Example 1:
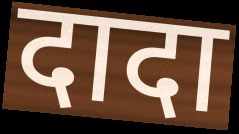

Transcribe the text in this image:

दादा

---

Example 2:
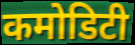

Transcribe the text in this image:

कमोडिटी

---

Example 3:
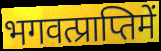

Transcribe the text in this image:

भगवत्प्राप्तिमें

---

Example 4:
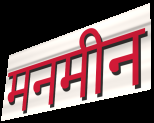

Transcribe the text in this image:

मनमीन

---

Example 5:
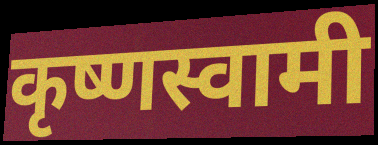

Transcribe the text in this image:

कृष्णस्वामी